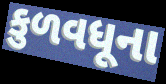
કુળવધૂના